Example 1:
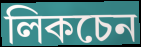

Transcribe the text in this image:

লিকচেন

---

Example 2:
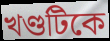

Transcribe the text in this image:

খণ্ডটিকে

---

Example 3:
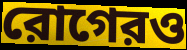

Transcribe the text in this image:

রোগেরও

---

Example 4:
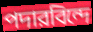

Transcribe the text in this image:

পদারবিন্দে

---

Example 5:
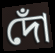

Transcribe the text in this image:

দোঁ